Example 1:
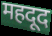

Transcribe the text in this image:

महदूद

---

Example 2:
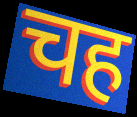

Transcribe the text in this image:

चह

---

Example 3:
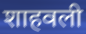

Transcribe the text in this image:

शाहवली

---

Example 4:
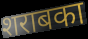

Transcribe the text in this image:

शराबका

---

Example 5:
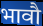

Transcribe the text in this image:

भावौ